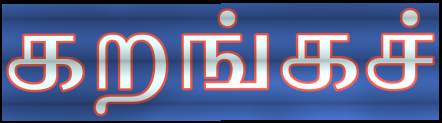
கறங்கச்